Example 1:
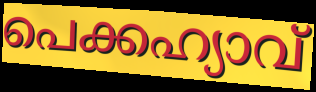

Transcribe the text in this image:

പെക്കഹ്യാവ്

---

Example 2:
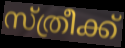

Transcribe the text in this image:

സ്ത്രീക്ക്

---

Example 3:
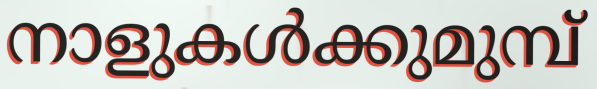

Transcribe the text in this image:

നാളുകൾക്കുമുമ്പ്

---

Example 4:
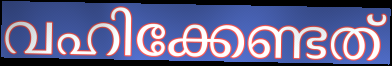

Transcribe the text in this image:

വഹിക്കേണ്ടത്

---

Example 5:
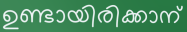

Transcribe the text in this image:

ഉണ്ടായിരിക്കാന്